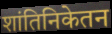
शांतिनिकेतन